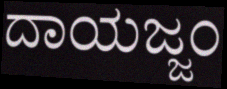
ದಾಯಜ್ಜಂ